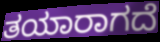
ತಯಾರಾಗದೆ